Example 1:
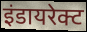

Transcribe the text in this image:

इंडायरेक्ट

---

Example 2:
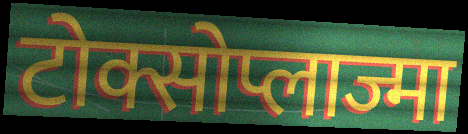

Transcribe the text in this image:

टोक्सोप्लाज्मा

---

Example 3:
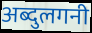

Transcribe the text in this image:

अब्दुलगनी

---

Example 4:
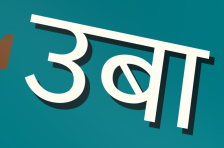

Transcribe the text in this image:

उबा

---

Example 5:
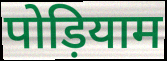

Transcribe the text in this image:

पोड़ियाम